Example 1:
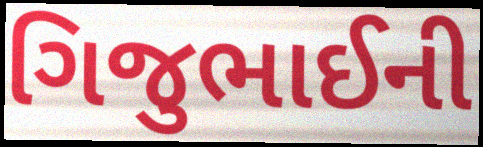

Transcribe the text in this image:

ગિજુભાઈની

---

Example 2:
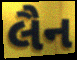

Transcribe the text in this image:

લૈન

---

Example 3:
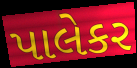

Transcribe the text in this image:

પાલેકર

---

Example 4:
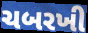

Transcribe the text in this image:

ચબરખી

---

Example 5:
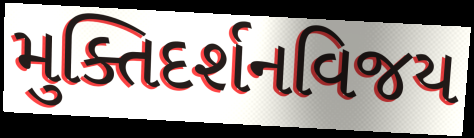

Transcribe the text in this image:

મુક્તિદર્શનવિજય